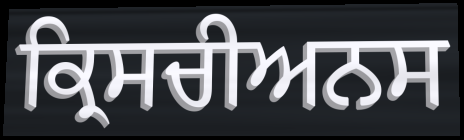
ਕ੍ਰਿਸਚੀਅਨਸ